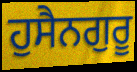
ਹੁਸੈਨਗੁਰੂ